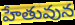
హేతువున